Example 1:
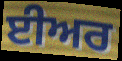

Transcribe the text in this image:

ਈਅਰ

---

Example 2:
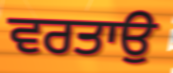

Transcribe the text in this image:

ਵਰਤਾਉ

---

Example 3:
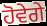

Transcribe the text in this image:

ਹੋਵੇਗੇ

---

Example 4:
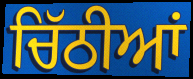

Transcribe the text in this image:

ਚਿੱਠੀਆਂ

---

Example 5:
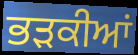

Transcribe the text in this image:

ਭੜਕੀਆਂ